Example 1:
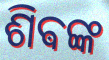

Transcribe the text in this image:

ଶିଵଙ୍କ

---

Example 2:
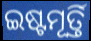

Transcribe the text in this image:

ଇଷ୍ଟମୂର୍ତ୍ତି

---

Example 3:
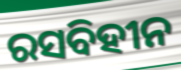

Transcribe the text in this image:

ରସବିହୀନ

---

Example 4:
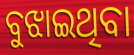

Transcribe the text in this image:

ବୁଝାଇଥିବା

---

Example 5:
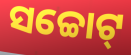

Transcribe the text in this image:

ସଚ୍ଚୋଟ୍